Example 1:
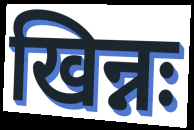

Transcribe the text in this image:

खिन्नः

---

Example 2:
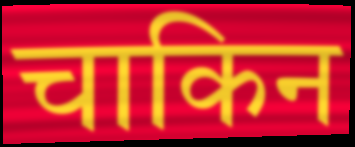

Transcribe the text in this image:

चाकिन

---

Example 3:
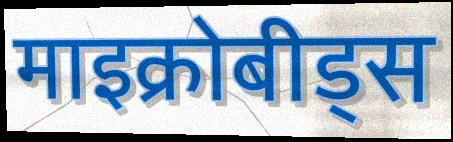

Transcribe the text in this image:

माइक्रोबीड्स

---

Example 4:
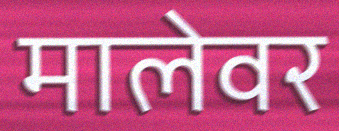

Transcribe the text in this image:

मालेवर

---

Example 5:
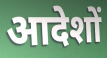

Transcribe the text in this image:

आदेशों